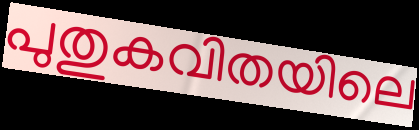
പുതുകവിതയിലെ